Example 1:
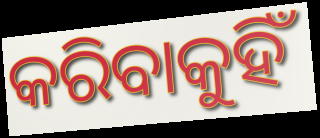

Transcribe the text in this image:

କରିବାକୁହିଁ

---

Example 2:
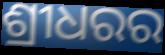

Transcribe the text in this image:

ଶ୍ରୀଧରର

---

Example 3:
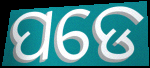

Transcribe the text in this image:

ପଡେ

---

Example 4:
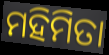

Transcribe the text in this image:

ମହିମିତା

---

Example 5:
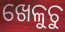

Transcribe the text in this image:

ଖେଳୁଚୁ